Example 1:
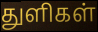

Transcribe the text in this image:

துளிகள்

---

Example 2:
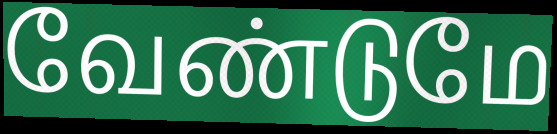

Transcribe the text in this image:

வேண்டுமே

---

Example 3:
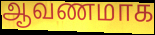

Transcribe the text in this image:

ஆவணமாக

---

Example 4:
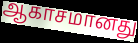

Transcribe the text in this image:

ஆகாசமானது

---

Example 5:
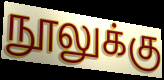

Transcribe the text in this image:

நூலுக்கு